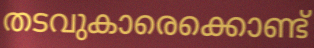
തടവുകാരെക്കൊണ്ട്